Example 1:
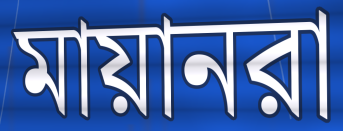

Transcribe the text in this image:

মায়ানরা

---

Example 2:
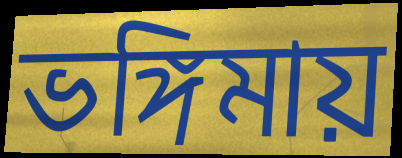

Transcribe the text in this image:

ভঙ্গিমায়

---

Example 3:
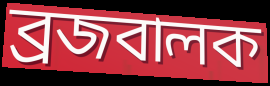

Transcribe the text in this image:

ব্রজবালক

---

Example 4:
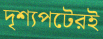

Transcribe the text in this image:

দৃশ্যপটেরই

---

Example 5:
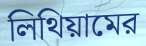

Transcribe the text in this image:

লিথিয়ামের